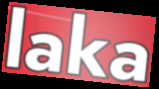
laka